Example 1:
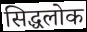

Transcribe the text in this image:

सिद्धलोक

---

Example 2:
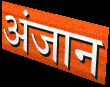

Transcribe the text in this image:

अंजान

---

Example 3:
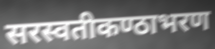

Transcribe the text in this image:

सरस्वतीकण्ठाभरण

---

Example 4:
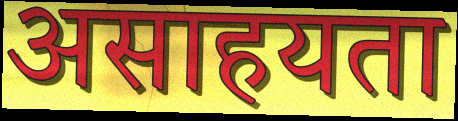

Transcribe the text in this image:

असाहयता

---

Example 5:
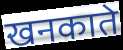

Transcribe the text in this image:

खनकाते